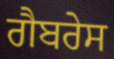
ਗੈਬਰੇਸ